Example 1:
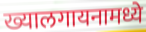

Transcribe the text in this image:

ख्यालगायनामध्ये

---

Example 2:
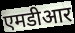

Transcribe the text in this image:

एमडीआर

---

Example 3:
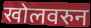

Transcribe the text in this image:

खोलवरुन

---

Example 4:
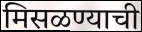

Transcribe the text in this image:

मिसळण्याची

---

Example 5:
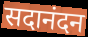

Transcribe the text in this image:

सदानंदन